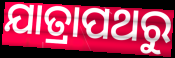
ଯାତ୍ରାପଥରୁ